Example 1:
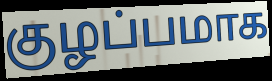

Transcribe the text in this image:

குழப்பமாக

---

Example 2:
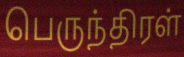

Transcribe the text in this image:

பெருந்திரள்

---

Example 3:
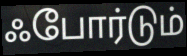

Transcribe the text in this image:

ஃபோர்டும்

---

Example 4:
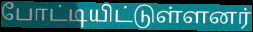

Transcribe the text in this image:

போட்டியிட்டுள்ளனர்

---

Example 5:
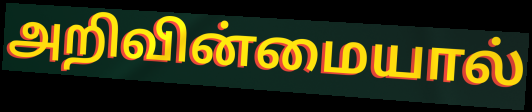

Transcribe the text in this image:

அறிவின்மையால்